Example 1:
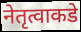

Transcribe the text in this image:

नेतृत्वाकडे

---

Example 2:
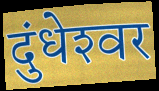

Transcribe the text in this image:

दुंधेश्वर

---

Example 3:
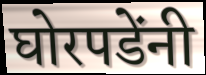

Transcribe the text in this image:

घोरपडेंनी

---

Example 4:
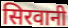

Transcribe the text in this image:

सिरवानी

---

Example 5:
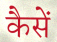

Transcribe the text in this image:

कैसें